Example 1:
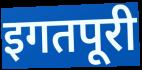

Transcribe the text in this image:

इगतपूरी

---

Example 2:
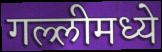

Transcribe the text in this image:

गल्लीमध्ये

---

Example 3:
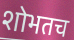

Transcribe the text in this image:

शोभतच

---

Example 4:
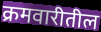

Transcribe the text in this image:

क्रमवारीतील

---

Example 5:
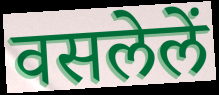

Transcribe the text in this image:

वसलेलें